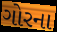
ગોરના